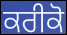
ਕਰੀਕੋ